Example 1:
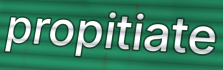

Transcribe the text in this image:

propitiate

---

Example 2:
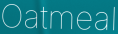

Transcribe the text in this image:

Oatmeal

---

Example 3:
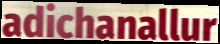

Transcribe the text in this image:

adichanallur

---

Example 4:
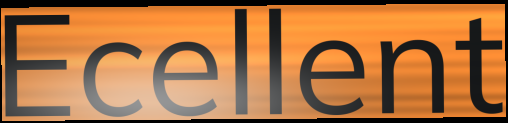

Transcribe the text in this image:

Ecellent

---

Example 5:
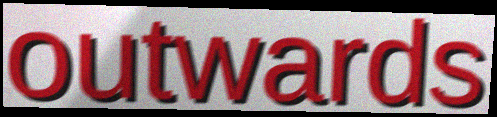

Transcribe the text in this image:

outwards